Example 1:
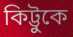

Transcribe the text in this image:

কিট্টুকে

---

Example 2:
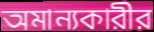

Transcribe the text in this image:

অমান্যকারীর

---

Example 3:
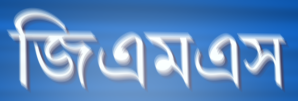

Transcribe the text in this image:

জিএমএস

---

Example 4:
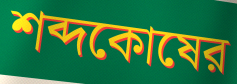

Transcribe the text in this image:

শব্দকোষের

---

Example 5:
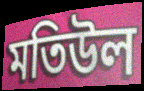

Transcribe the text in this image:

মতিউল